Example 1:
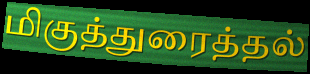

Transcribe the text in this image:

மிகுத்துரைத்தல்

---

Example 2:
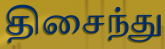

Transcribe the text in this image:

திசைந்து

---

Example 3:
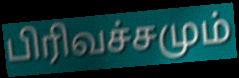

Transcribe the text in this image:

பிரிவச்சமும்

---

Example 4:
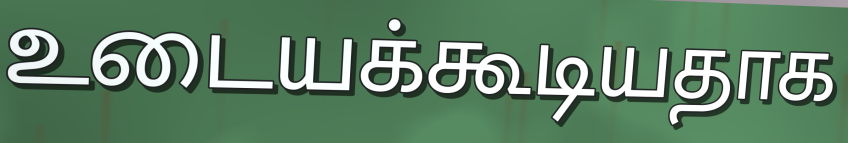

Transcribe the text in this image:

உடையக்கூடியதாக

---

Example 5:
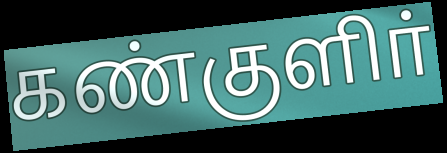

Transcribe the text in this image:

கண்குளிர்